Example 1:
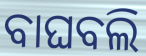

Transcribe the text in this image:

ବାଘବଲି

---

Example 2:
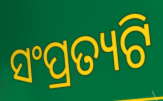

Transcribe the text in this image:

ସଂପ୍ରତ୍ୟଟି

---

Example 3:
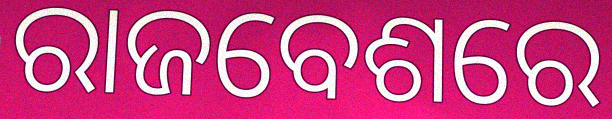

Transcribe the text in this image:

ରାଜବେଶରେ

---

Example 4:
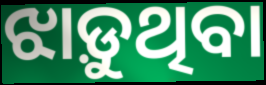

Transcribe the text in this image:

ଝାଡ଼ୁଥିବା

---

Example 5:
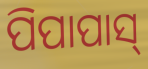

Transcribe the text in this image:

ପିପାପାସ୍